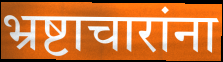
भ्रष्टाचारांना